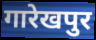
गारेखपुर